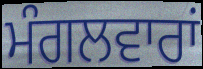
ਮੰਗਲਵਾਰਾਂ